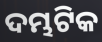
ଦମ୍ଭଟିକ